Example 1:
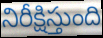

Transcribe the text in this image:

నిరీక్షిస్తుంది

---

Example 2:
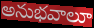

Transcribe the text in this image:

అనుభవాలూ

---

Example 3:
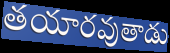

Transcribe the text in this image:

తయారవుతాడు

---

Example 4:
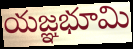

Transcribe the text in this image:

యజ్ఞభూమి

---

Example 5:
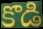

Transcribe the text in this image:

కొడి